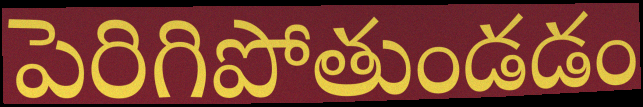
పెరిగిపోతుండడం